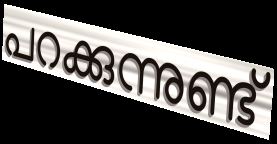
പറക്കുന്നുണ്ട്